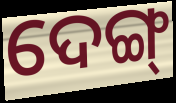
ଦେଙ୍ଗ୍